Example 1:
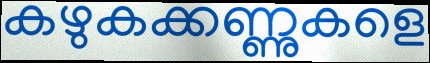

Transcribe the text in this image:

കഴുകക്കണ്ണുകളെ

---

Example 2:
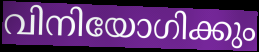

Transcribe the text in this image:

വിനിയോഗിക്കും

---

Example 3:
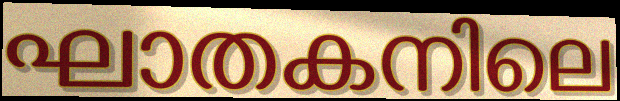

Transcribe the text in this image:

ഘാതകനിലെ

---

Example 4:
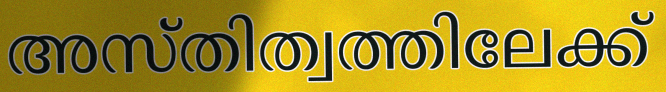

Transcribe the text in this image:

അസ്തിത്വത്തിലേക്ക്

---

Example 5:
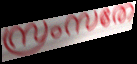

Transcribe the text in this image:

സ്രംസതേ